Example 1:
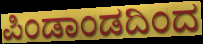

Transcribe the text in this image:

ಪಿಂಡಾಂಡದಿಂದ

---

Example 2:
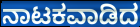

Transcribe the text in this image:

ನಾಟಕವಾಡಿದ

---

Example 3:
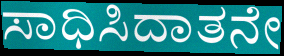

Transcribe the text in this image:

ಸಾಧಿಸಿದಾತನೇ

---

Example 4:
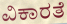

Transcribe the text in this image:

ವಿಕಾರತೆ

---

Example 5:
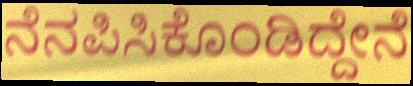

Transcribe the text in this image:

ನೆನಪಿಸಿಕೊಂಡಿದ್ದೇನೆ